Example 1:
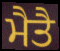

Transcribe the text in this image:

ਮੈਤੈ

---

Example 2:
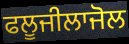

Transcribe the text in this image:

ਫਲੂਜੀਲਾਜੋਲ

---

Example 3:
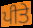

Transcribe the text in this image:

ਪੀਤੇ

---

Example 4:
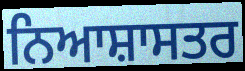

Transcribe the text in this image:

ਨਿਆਸ਼ਾਸਤਰ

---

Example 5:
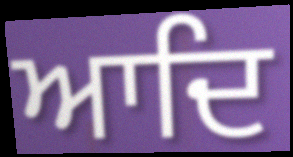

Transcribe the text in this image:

ਆਦਿ